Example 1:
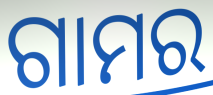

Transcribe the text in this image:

ଗାମର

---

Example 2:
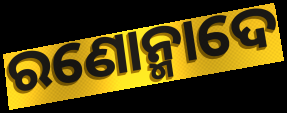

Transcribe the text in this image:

ରଣୋନ୍ମାଦେ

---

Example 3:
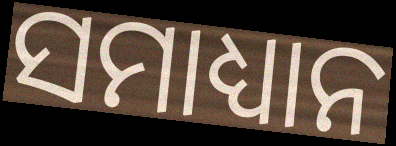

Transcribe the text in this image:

ସମାଧ୍ୟାନ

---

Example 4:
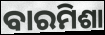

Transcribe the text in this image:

ବାରମିଶା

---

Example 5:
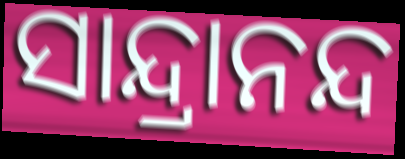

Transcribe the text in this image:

ସାନ୍ଦ୍ରାନନ୍ଦ